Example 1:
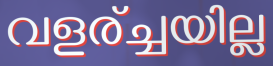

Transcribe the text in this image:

വളര്ച്ചയില്ല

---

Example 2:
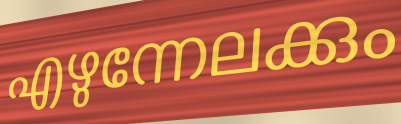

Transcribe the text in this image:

എഴുന്നേലക്കും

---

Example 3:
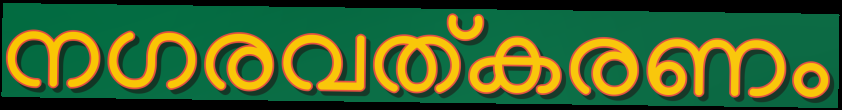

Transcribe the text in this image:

നഗരവത്കരണം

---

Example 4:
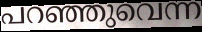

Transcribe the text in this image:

പറഞ്ഞുവെന്ന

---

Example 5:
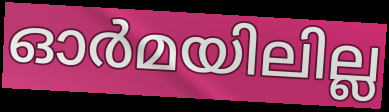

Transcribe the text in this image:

ഓർമയിലില്ല